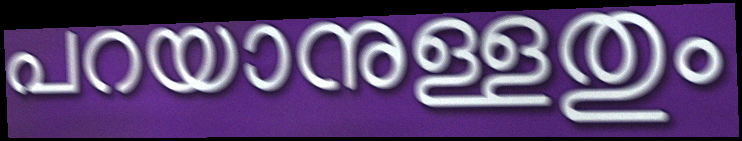
പറയാനുള്ളതും